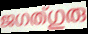
ജഗത്ഗുരു